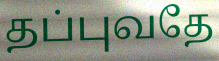
தப்புவதே